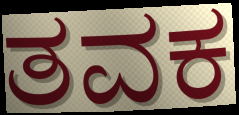
ತವಕ